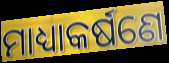
ମାଧ୍ୟାକର୍ଷଣେ